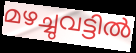
മഴച്ചുവട്ടിൽ